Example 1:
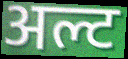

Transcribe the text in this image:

अल्ट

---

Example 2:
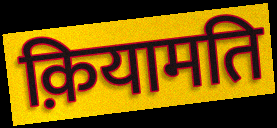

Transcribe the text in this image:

क़ियामति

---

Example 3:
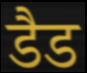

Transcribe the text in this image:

डैड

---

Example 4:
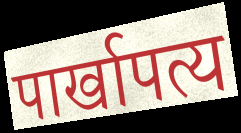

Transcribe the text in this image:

पार्खापत्य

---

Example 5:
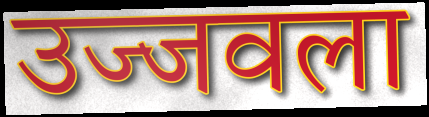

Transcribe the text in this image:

उज्‍जवला